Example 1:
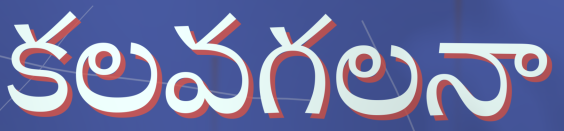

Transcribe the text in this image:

కలవగలనా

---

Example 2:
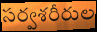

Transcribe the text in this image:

సర్వశరీరుల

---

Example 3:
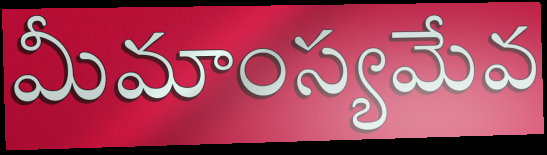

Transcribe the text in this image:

మీమాంస్యమేవ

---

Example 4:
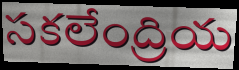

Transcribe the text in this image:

సకలేంద్రియ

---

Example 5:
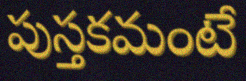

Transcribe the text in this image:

పుస్తకమంటే